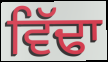
ਵਿੱਢਾ